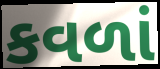
કવળાં